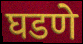
घडणे